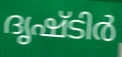
ദൃഷ്ടിർ